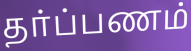
தர்ப்பணம்